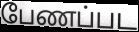
பேணப்பட